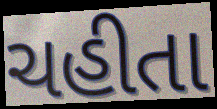
ચહીતા